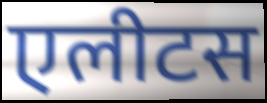
एलीटस